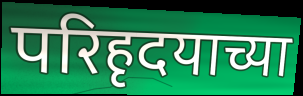
परिहृदयाच्या